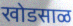
खोडसाळ